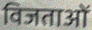
विजताओं